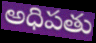
అధిపతు